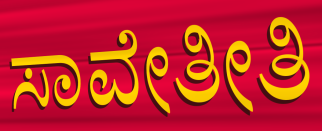
ಸಾವೇತೀತಿ